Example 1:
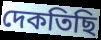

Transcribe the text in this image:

দেকতিছি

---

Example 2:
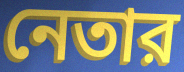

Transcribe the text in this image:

নেতার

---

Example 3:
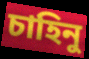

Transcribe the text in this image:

চাহিনু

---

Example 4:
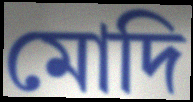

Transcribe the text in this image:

মোদি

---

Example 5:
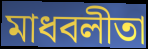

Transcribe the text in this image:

মাধবলীতা